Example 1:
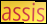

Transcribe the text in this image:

assis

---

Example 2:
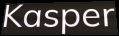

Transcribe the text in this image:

Kasper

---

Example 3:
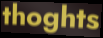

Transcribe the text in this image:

thoghts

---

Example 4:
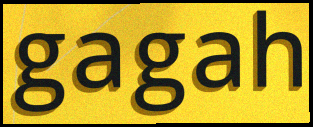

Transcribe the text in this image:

gagah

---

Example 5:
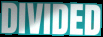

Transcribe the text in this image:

DIVIDED